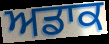
ਅਡਾਕ